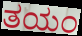
ತಯಂ